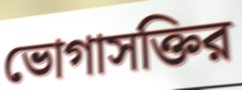
ভোগাসক্তির